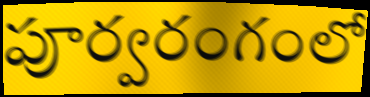
పూర్వరంగంలో